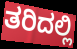
ತರಿದಲ್ಲಿ